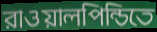
রাওয়ালপিন্ডিতে